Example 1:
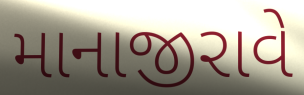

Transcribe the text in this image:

માનાજીરાવે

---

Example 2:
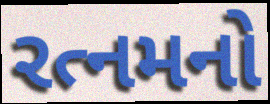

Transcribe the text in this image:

રત્નમનો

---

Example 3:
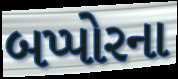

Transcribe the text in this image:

બપ્પોરના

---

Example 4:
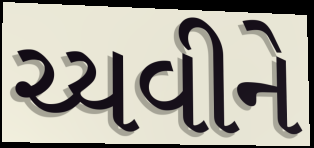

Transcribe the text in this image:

ચ્યવીને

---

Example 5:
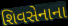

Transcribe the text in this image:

શિવસેનાના